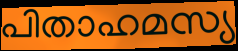
പിതാഹമസ്യ